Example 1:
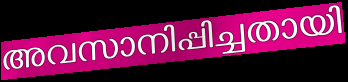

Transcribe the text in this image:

അവസാനിപ്പിച്ചതായി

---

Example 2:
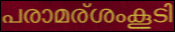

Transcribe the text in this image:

പരാമര്ശംകൂടി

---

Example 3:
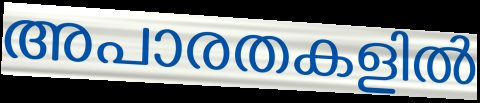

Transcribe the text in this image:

അപാരതകളിൽ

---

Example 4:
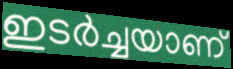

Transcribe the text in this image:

ഇടർച്ചയാണ്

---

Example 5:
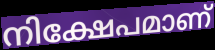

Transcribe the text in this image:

നിക്ഷേപമാണ്